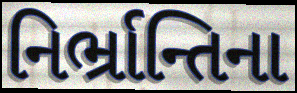
નિર્ભ્રાન્તિના